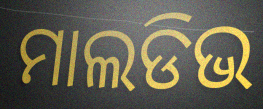
ମାଲଡିଭ